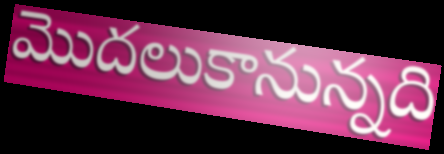
మొదలుకానున్నది